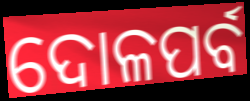
ଦୋଳପର୍ବ